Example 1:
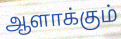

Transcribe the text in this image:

ஆளாக்கும்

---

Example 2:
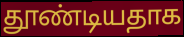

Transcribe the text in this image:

தூண்டியதாக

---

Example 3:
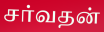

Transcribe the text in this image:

சர்வதன்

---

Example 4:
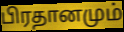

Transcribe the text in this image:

பிரதானமும்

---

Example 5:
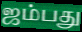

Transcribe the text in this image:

ஜம்பது